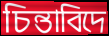
চিন্তাবিদে